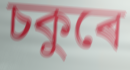
চকুৰে